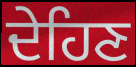
ਦੇਹਿਣ